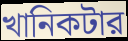
খানিকটার